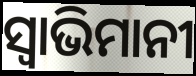
ସ୍ବାଭିମାନୀ